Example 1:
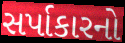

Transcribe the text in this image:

સર્પાકારનો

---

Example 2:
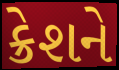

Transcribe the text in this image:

ક્રેશને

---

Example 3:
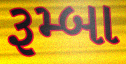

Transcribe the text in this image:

રૂમ્બા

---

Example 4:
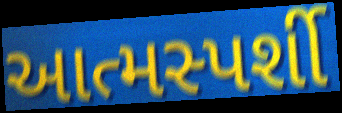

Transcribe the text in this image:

આત્મસ્પર્શી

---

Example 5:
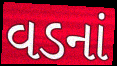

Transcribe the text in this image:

વડનાં